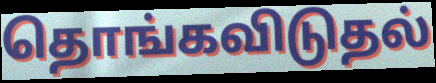
தொங்கவிடுதல்